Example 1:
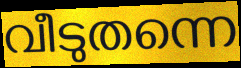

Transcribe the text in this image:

വീടുതന്നെ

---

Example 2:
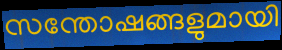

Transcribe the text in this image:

സന്തോഷങ്ങളുമായി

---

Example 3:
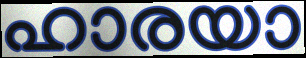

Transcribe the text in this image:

ഹാരയാ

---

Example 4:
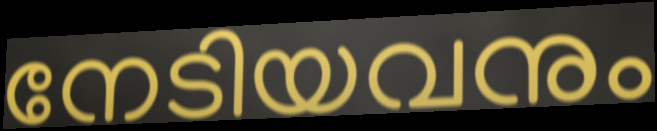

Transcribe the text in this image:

നേടിയവനും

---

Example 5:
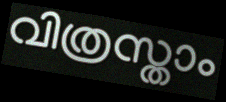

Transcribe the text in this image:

വിത്രസ്താം